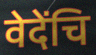
वेदेंचि